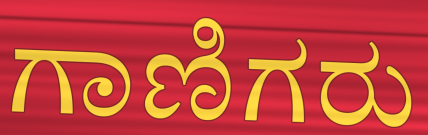
ಗಾಣಿಗರು